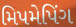
મિપમેપિંગ